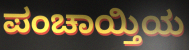
ಪಂಚಾಯ್ತಿಯ